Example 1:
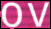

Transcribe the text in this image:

ov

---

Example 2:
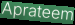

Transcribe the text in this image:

Aprateem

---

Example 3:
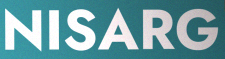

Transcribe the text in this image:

NISARG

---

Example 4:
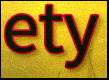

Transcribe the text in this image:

ety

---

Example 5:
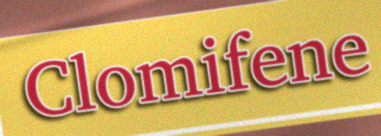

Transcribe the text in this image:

Clomifene